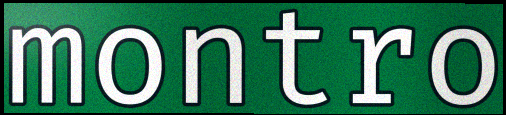
montro